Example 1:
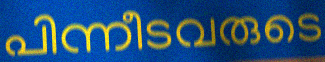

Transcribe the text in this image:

പിന്നീടവരുടെ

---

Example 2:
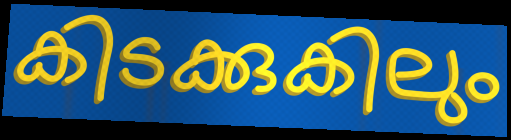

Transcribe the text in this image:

കിടക്കുകിലും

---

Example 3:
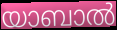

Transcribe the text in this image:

യാബാൽ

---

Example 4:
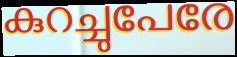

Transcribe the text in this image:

കുറച്ചുപേരേ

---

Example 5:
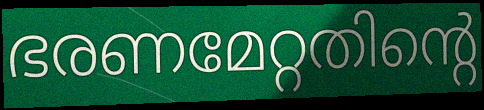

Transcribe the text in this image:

ഭരണമേറ്റതിന്റെ